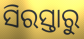
ସିରସ୍ତାରୁ